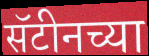
सॅटीनच्या